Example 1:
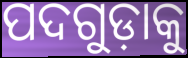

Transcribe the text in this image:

ପଦଗୁଡ଼ାକୁ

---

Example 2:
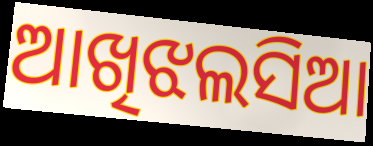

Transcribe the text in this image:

ଆଖିଝଲସିଆ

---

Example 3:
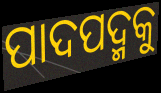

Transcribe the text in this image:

ପାଦପଦ୍ମକୁ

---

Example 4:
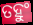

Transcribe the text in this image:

ତହୁଂ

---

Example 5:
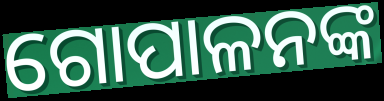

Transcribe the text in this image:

ଗୋପାଳନଙ୍କ